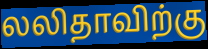
லலிதாவிற்கு